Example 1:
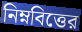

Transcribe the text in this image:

নিম্নবিত্তের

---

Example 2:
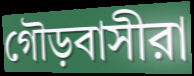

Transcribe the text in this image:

গৌড়বাসীরা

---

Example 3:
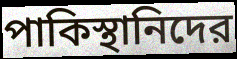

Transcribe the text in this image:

পাকিস্থানিদের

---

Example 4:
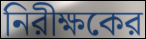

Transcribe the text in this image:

নিরীক্ষকের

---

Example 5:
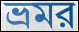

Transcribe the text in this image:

ভ্রমর